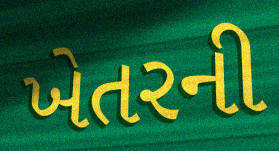
ખેતરની